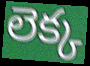
లెక్క